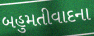
બહુમતીવાદના